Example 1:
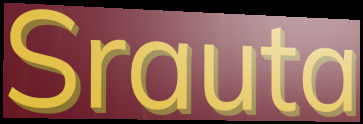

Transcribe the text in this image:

Srauta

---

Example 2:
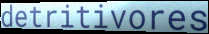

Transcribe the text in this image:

detritivores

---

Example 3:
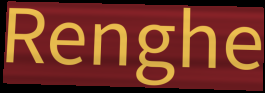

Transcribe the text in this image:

Renghe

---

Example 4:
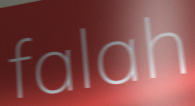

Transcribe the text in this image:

falah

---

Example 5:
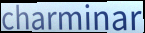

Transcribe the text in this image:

charminar